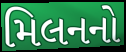
મિલનનો